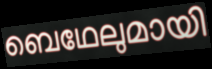
ബെഥേലുമായി